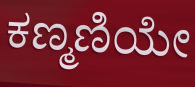
ಕಣ್ಮಣಿಯೇ